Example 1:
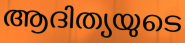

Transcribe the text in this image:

ആദിത്യയുടെ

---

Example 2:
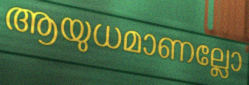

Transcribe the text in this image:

ആയുധമാണല്ലോ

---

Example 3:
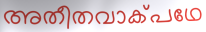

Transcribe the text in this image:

അതീതവാക്പഥേ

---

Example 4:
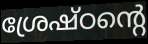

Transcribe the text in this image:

ശ്രേഷ്ഠന്റെ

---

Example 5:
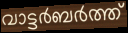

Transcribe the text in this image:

വാട്ടർബർത്ത്